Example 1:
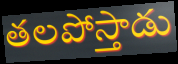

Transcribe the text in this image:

తలపోస్తాడు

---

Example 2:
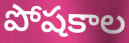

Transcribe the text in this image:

పోషకాల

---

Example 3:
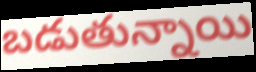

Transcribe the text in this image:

బడుతున్నాయి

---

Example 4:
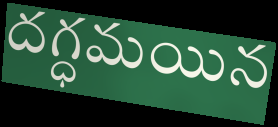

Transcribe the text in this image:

దగ్ధమయిన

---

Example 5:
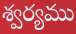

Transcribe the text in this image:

శ్వర్యము